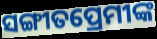
ସଙ୍ଗୀତପ୍ରେମୀଙ୍କ